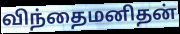
விந்தைமனிதன்